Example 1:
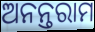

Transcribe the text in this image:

ଅନନ୍ତରାମ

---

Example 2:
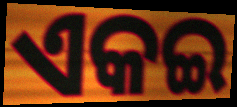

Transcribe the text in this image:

ଏକଇ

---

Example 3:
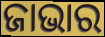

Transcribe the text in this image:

ଜାଭାର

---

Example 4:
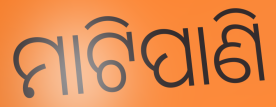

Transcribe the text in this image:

ମାଟିପାଣି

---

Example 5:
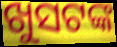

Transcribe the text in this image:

ଖୁସଟଙ୍କ